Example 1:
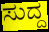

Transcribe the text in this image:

ಸುದ್ದ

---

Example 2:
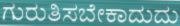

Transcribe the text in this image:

ಗುರುತಿಸಬೇಕಾದುದು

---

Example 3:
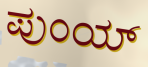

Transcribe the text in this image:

ಪುಂಯ್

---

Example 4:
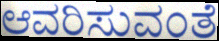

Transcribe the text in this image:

ಆವರಿಸುವಂತೆ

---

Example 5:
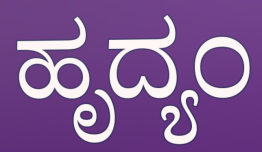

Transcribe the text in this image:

ಹೃದ್ಯಂ